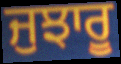
ਜੁਝਾਰੂ